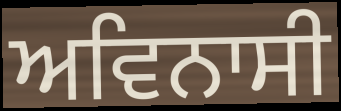
ਅਵਿਨਾਸੀ